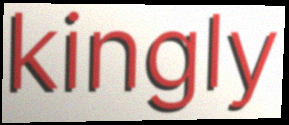
kingly